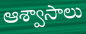
ఆశ్వాసాలు